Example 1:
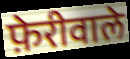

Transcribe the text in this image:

फ़ेरीवाले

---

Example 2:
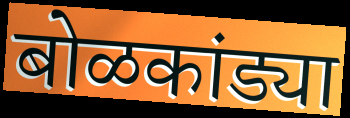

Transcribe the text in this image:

बोळकांड्या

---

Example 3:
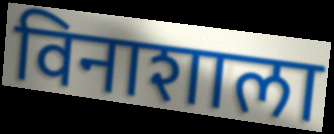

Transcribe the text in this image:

विनाशाला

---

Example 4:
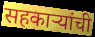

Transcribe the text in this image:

सहकाऱ्यांची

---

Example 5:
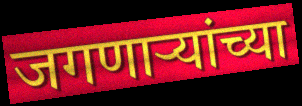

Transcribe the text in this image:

जगणाऱ्यांच्या